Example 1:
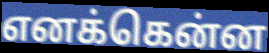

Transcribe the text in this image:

எனக்கென்ன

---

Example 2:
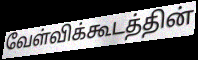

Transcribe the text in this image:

வேள்விக்கூடத்தின்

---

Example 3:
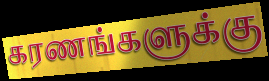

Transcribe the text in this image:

கரணங்களுக்கு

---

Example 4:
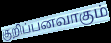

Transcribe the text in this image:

குறிப்பனவாகும்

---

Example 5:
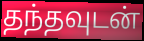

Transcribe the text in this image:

தந்தவுடன்